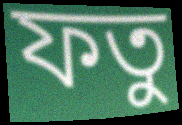
ফতু